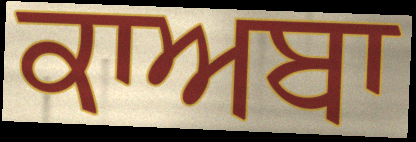
ਕਾਅਬਾ